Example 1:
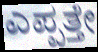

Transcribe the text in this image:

ಎಪ್ಪತ್ತೇ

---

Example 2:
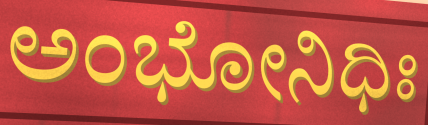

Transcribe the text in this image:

ಅಂಭೋನಿಧಿಃ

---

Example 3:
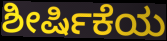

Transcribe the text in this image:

ಶೀರ್ಷಿಕೆಯ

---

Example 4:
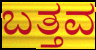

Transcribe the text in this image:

ಬತ್ತವ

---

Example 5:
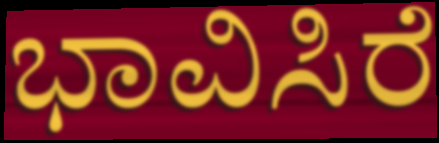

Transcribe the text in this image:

ಭಾವಿಸಿರೆ